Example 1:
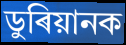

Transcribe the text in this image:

ডুৰিয়ানক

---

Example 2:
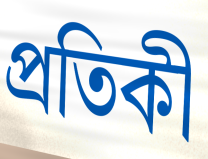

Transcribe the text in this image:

প্ৰতিকী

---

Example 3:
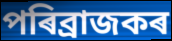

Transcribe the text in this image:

পৰিব্ৰাজকৰ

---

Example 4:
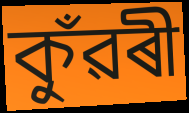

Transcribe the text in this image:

কুঁৱৰী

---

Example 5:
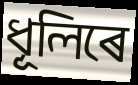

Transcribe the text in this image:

ধূলিৰে